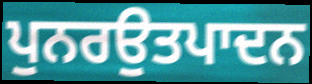
ਪੁਨਰਉਤਪਾਦਨ